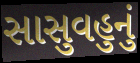
સાસુવહુનું